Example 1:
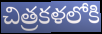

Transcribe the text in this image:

చిత్రకళలోకి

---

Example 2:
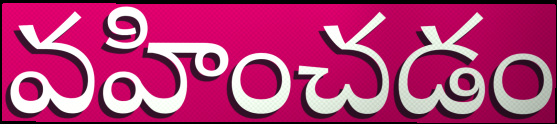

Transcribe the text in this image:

వహించడం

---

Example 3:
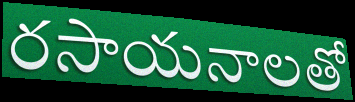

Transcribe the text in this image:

రసాయనాలతో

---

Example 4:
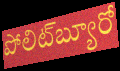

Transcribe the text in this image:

పోలిట్‌బ్యూరో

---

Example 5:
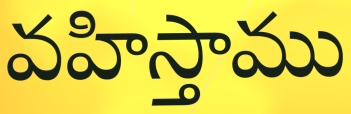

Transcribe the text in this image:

వహిస్తాము